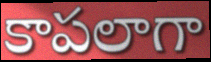
కాపలాగా